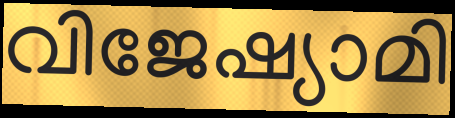
വിജേഷ്യാമി